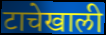
टाचेखाली